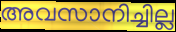
അവസാനിച്ചില്ല